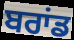
ਬਰਾਂਡ